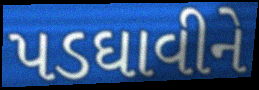
પડઘાવીને